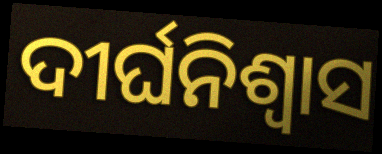
ଦୀର୍ଘନିଶ୍ବାସ